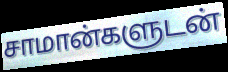
சாமான்களுடன்